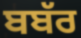
ਬਬੱਰ